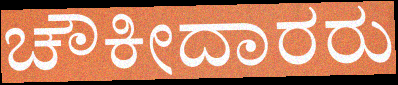
ಚೌಕೀದಾರರು